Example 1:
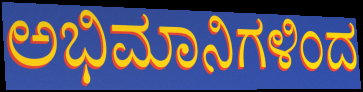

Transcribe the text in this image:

ಅಭಿಮಾನಿಗಳಿಂದ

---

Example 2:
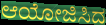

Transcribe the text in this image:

ಆಯೋಜಿಸಿದ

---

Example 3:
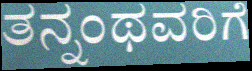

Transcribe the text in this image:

ತನ್ನಂಥವರಿಗೆ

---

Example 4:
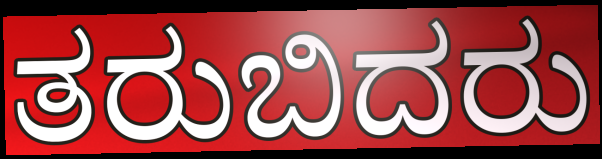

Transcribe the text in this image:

ತರುಬಿದರು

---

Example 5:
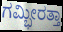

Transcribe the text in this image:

ಗಮ್ಭೀರತ್ತಾ